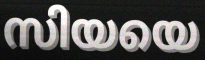
സിയയെ